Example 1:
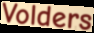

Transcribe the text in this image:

Volders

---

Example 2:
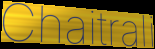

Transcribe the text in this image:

Chaitrali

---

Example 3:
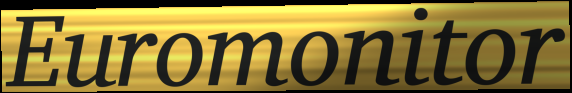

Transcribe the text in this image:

Euromonitor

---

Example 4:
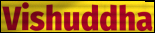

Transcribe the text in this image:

Vishuddha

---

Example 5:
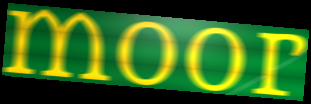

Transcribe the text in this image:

moor